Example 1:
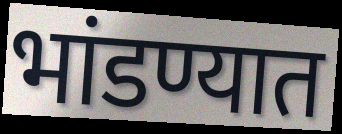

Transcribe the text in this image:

भांडण्यात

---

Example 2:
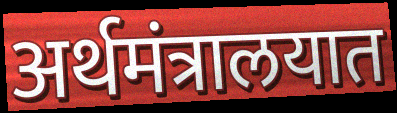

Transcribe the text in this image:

अर्थमंत्रालयात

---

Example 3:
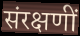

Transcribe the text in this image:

संरक्षणीं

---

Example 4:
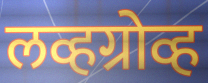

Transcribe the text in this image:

लव्हग्रोव्ह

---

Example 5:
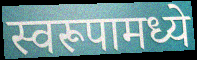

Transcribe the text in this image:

स्वरूपामध्ये